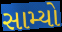
સામ્યો